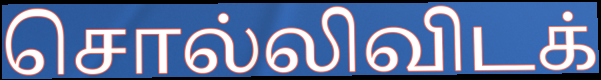
சொல்லிவிடக்